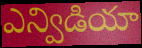
ఎన్విడియా